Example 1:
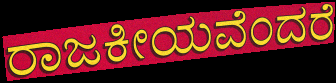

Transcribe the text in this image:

ರಾಜಕೀಯವೆಂದರೆ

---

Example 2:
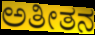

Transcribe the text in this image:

ಅತೀತನ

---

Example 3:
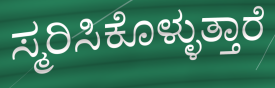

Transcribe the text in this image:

ಸ್ಮರಿಸಿಕೊಳ್ಳುತ್ತಾರೆ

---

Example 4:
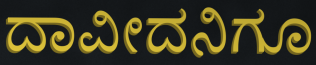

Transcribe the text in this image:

ದಾವೀದನಿಗೂ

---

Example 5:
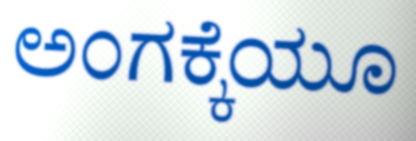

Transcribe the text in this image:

ಅಂಗಕ್ಕೆಯೂ